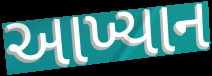
આખ્યાન